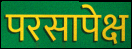
परसापेक्ष